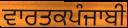
ਵਾਰਤਕਪੰਜਾਬੀ